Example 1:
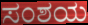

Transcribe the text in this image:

ಸಂಶಯ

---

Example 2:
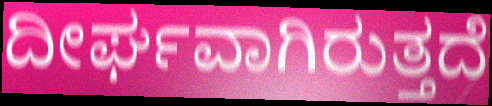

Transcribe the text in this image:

ದೀರ್ಘವಾಗಿರುತ್ತದೆ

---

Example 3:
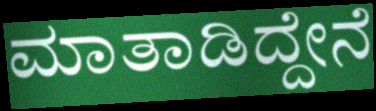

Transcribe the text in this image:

ಮಾತಾಡಿದ್ದೇನೆ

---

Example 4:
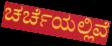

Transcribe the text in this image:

ಚರ್ಚೆಯಲ್ಲಿವೆ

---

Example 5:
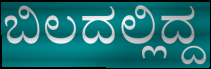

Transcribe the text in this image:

ಬಿಲದಲ್ಲಿದ್ದ